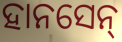
ହାନସେନ୍